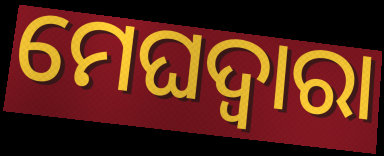
ମେଘଦ୍ୱାରା